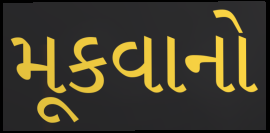
મૂકવાનો